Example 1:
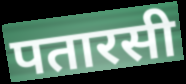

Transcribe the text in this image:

पतारसी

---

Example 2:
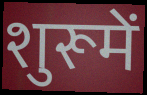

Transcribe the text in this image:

शुरूमें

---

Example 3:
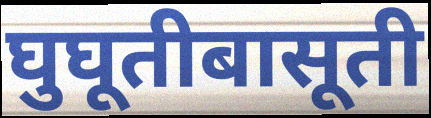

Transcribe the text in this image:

घुघूतीबासूती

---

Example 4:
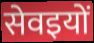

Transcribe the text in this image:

सेवइयों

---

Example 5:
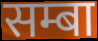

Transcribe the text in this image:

सम्बा